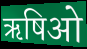
ऋषिओ